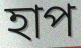
হাপ